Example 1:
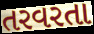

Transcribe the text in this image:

તરવરતા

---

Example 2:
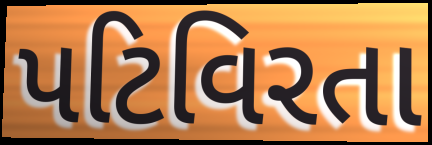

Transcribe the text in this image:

પટિવિરતા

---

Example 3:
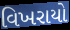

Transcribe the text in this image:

વિખરાયો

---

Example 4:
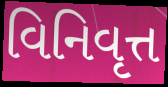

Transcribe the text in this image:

વિનિવૃત્ત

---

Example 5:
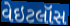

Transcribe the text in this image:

વેઇટલૉસ